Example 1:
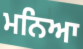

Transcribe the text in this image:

ਮਨਿਆ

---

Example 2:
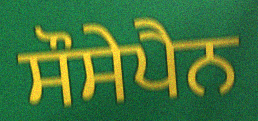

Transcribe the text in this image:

ਸੌਸੇਪੈਨ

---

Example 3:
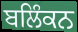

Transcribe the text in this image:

ਬਲਿੰਕਨ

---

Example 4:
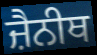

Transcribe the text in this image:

ਜ਼ੈਨੀਥ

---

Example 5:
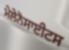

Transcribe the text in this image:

ਮੇਲੇਨੋਸਾਈਟਸ